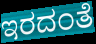
ಇರದಂತೆ